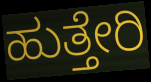
ಹುತ್ತೇರಿ